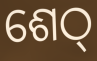
ଶେଠ୍